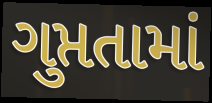
ગુપ્તતામાં